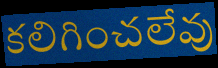
కలిగించలేవు